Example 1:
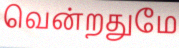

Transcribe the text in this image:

வென்றதுமே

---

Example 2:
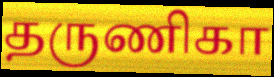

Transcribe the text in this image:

தருணிகா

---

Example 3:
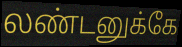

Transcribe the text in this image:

லண்டனுக்கே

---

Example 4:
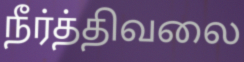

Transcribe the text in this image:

நீர்த்திவலை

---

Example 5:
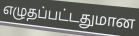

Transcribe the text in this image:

எழுதப்பட்டதுமான